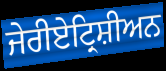
ਜੇਰੀਏਟ੍ਰਿਸ਼ੀਅਨ